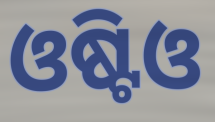
ଓଷ୍ଟିଓ